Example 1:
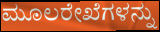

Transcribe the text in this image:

ಮೂಲರೇಖೆಗಳನ್ನು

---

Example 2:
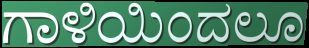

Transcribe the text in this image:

ಗಾಳಿಯಿಂದಲೂ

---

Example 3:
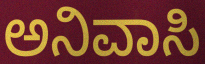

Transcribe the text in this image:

ಅನಿವಾಸಿ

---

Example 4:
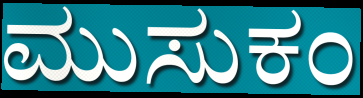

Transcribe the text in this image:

ಮುಸುಕಂ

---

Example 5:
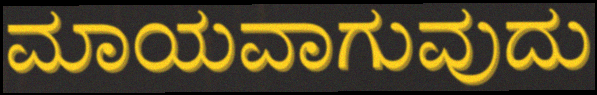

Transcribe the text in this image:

ಮಾಯವಾಗುವುದು